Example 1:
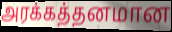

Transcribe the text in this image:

அரக்கத்தனமான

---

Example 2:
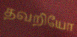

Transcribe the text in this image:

தவறியோ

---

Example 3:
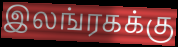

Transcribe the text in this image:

இலங்ரகக்கு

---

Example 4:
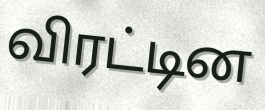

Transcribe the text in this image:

விரட்டின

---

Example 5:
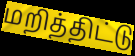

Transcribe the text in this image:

மறித்திட்டு